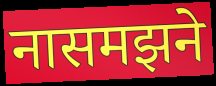
नासमझने